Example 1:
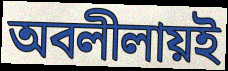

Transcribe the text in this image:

অবলীলায়ই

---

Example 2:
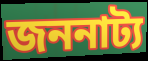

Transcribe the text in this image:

জননাট্য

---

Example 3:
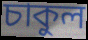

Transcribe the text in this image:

চাকুল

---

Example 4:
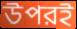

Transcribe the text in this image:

উপরই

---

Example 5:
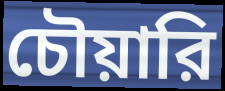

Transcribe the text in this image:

চৌয়ারি